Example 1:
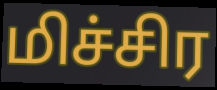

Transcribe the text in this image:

மிச்சிர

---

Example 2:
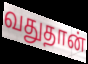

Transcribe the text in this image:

வதுதான்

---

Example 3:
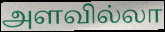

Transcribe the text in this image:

அளவில்லா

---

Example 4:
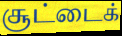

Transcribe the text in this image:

சூட்டைக்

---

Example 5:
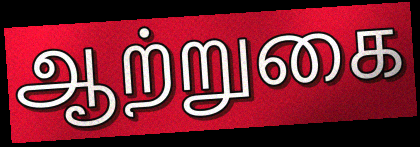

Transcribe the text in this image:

ஆற்றுகை